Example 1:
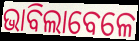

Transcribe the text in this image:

ଭାବିଲାବେଳେ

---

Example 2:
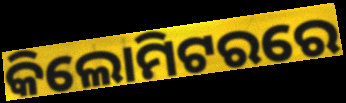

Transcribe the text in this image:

କିଲୋମିଟରରେ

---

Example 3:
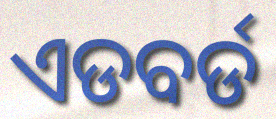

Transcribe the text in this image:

ଏଡବର୍ଡ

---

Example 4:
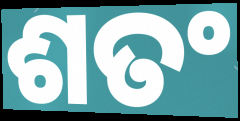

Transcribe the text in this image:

ଶତଂ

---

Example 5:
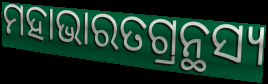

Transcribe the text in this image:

ମହାଭାରତଗ୍ରନ୍ଥସ୍ୟ